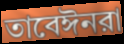
তাবেঈনরা